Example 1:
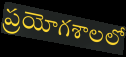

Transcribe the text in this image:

ప్రయోగశాలలో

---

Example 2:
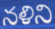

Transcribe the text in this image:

నళిని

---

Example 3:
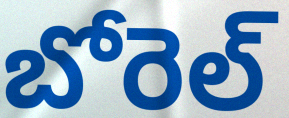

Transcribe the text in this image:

బోరెల్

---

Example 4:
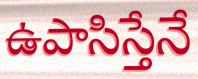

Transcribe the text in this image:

ఉపాసిస్తేనే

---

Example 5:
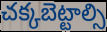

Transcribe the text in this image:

చక్కబెట్టాల్సి